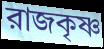
রাজকৃষ্ণ